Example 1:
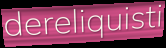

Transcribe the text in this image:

dereliquisti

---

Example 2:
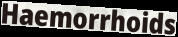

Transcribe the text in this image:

Haemorrhoids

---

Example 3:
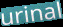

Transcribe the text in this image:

urinal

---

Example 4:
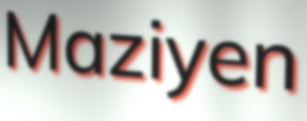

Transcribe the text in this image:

Maziyen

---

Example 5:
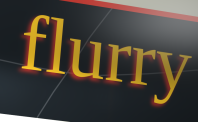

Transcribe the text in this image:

flurry